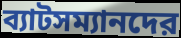
ব্যাটসম্যানদের